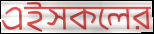
এইসকলের